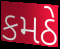
કમઠે